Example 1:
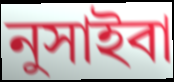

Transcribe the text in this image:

নুসাইবা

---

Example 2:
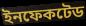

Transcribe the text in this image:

ইনফেকটেড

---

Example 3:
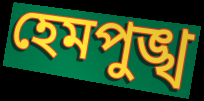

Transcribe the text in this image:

হেমপুঙ্খ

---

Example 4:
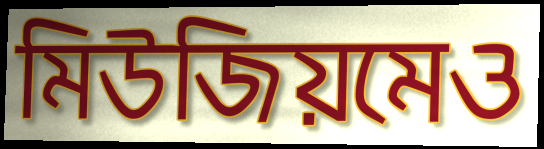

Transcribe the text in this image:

মিউজিয়মেও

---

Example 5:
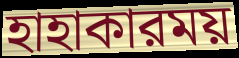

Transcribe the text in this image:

হাহাকারময়